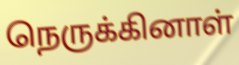
நெருக்கினாள்